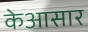
केआसार